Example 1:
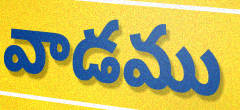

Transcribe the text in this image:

వాడము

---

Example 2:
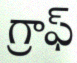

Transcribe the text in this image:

గ్రాఫ్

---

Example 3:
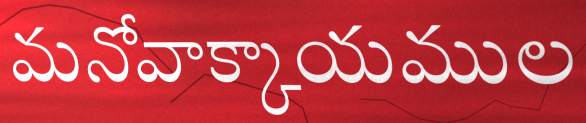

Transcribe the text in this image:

మనోవాక్కాయముల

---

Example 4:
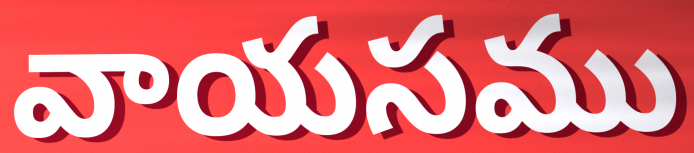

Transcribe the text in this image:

వాయసము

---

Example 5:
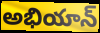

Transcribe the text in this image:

అభియాన్